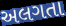
અલગતા